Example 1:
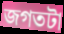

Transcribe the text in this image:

জগতটা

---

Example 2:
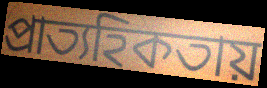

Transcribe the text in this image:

প্রাত্যহিকতায়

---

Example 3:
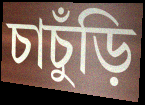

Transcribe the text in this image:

চাচুঁড়ি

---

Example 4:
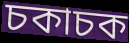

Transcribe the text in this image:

চকাচক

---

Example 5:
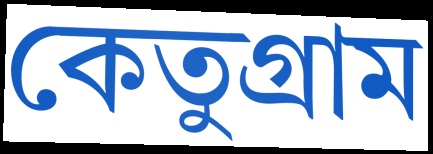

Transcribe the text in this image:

কেতুগ্রাম